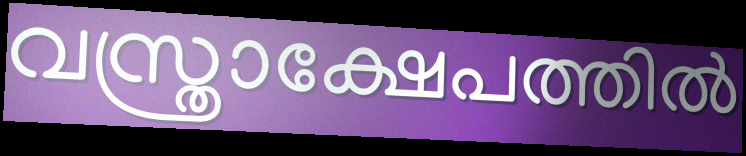
വസ്ത്രാക്ഷേപത്തിൽ